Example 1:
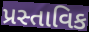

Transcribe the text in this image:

પ્રસ્તાવિક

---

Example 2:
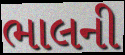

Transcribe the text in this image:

ભાલની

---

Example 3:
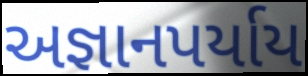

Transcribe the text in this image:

અજ્ઞાનપર્યાય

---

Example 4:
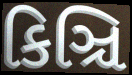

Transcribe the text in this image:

કિઞ્ચિ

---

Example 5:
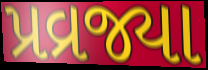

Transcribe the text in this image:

પ્રવ્રજ્યા